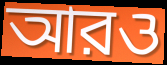
আরও